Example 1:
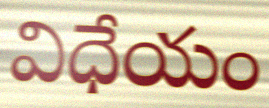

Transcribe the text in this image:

విధేయం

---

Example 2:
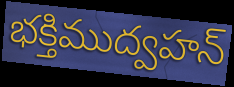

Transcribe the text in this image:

భక్తిముద్వహన్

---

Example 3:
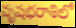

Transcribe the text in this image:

వృషభరాశిలో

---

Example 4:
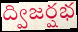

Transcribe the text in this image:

ద్విజర్షభ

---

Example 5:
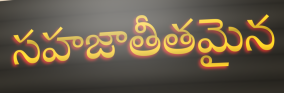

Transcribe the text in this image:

సహజాతీతమైన